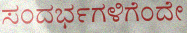
ಸಂದರ್ಭಗಳಿಗೆಂದೇ